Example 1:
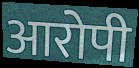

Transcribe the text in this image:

आरोपी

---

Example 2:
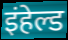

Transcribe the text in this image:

इंहेल्ड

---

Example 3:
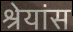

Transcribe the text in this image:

श्रेयांस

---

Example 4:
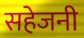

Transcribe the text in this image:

सहेजनी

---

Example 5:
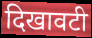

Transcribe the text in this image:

दिखावटी